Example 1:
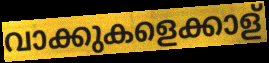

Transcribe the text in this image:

വാക്കുകളെക്കാള്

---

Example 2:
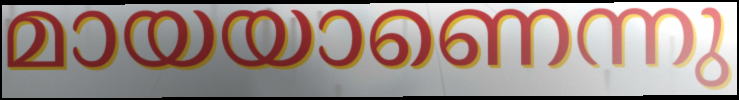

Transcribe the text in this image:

മായയാണെന്നു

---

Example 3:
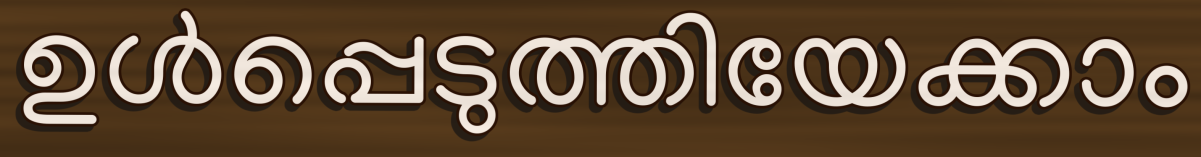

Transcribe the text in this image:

ഉൾപ്പെടുത്തിയേക്കാം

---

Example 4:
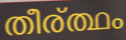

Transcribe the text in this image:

തീര്ത്ഥം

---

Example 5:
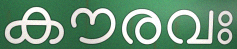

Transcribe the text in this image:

കൗരവഃ